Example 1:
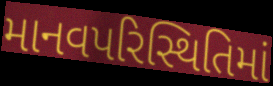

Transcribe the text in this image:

માનવપરિસ્થિતિમાં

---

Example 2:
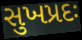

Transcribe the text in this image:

સુખપ્રદઃ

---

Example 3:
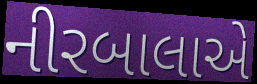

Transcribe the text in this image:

નીરબાલાએ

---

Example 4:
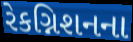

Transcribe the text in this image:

રેકગ્નિશનના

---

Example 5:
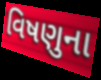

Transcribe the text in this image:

વિષણુના